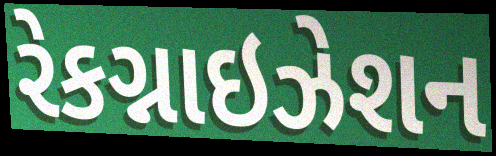
રેકગ્નાઇઝેશન